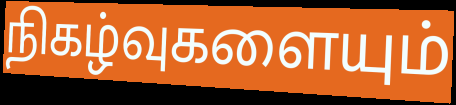
நிகழ்வுகளையும்